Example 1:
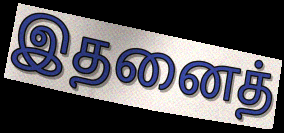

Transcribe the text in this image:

இதனைத்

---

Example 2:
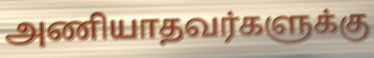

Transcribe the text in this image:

அணியாதவர்களுக்கு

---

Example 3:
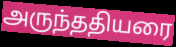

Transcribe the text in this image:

அருந்ததியரை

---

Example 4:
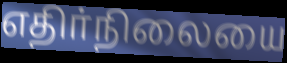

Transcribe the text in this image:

எதிர்நிலையை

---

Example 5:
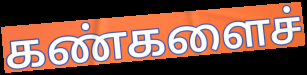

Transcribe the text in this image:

கண்களைச்